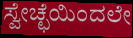
ಸ್ವೇಚ್ಛೆಯಿಂದಲೇ